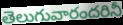
తెలుగువారందరినీ